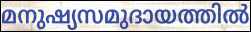
മനുഷ്യസമുദായത്തിൽ